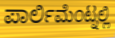
ಪಾರ್ಲಿಮೆಂಟ್ನಲ್ಲಿ